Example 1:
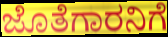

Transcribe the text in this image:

ಜೊತೆಗಾರನಿಗೆ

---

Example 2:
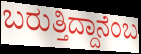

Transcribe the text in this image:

ಬರುತ್ತಿದ್ದಾನೆಂಬ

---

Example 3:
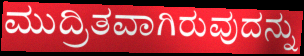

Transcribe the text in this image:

ಮುದ್ರಿತವಾಗಿರುವುದನ್ನು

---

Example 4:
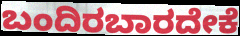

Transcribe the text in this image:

ಬಂದಿರಬಾರದೇಕೆ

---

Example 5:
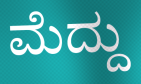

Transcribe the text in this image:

ಮೆದ್ದು